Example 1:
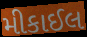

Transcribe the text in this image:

મીકાઈલ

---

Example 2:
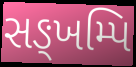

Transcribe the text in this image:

સઙ્ખમ્પિ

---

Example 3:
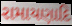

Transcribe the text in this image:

રામાયણાદિ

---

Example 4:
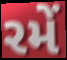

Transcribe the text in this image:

રમેં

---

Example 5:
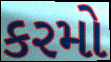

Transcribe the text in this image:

કરમો